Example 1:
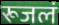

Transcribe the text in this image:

रूजलं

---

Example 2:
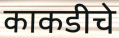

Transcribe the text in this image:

काकडीचे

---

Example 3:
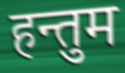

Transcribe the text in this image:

हन्तुम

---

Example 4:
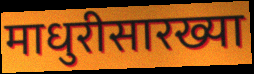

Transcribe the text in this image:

माधुरीसारख्या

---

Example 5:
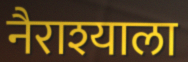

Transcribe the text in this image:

नैराश्याला